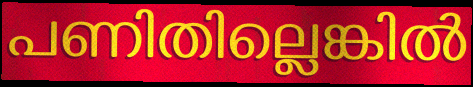
പണിതില്ലെങ്കിൽ